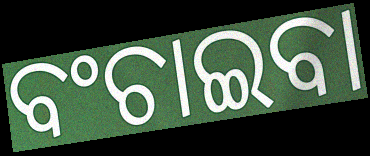
ବଂଚାଇବା